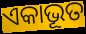
ଏକାଭୂତ